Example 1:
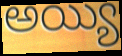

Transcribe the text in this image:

అయ్యి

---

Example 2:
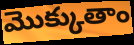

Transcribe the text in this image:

మొక్కుతాం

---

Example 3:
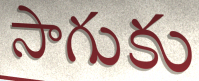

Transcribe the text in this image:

సాగుకు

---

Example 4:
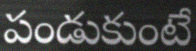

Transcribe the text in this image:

పండుకుంటే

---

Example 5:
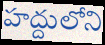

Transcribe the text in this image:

హద్దులోని